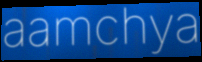
aamchya